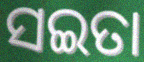
ସଇତା